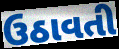
ઉઠાવતી